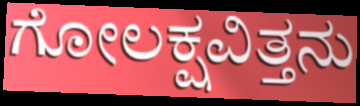
ಗೋಲಕ್ಷವಿತ್ತನು